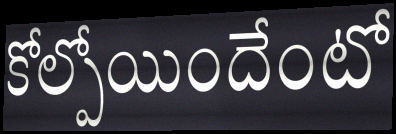
కోల్పోయిందేంటో